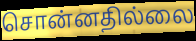
சொன்னதில்லை